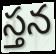
స్తన